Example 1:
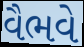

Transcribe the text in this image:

વૈભવે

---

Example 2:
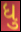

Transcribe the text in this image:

ધુ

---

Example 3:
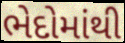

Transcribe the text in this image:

ભેદોમાંથી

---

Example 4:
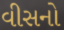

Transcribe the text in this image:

વીસનો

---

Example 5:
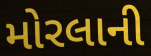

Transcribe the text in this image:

મોરલાની